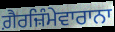
ਗ਼ੈਰਜ਼ਿੰਮੇਵਾਰਾਨਾ